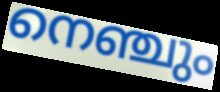
നെഞ്ചും